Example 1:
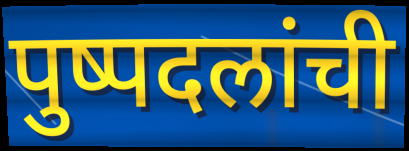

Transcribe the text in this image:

पुष्पदलांची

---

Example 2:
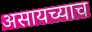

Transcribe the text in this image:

असायच्याच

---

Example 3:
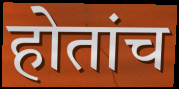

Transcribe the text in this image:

होतांच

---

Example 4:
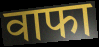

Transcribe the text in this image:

वाफा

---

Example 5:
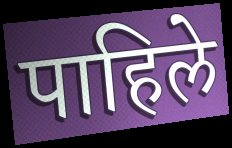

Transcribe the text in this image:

पाहिले